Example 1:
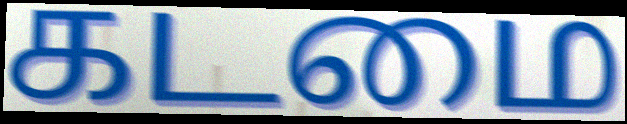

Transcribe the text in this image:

கடமை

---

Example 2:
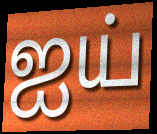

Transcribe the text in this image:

ஐய்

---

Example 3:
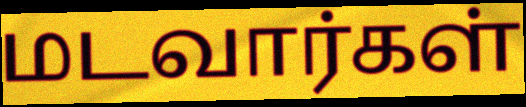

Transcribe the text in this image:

மடவார்கள்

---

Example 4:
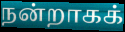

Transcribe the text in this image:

நன்றாகக்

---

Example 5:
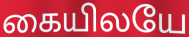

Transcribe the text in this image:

கையிலயே